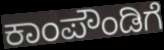
ಕಾಂಪೌಂಡಿಗೆ